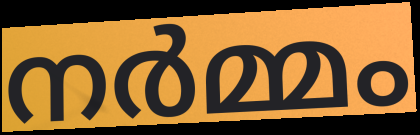
നർമ്മം